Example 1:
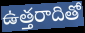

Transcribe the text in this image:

ఉత్తరాదితో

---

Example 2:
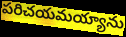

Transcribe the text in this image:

పరిచయమయ్యాను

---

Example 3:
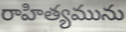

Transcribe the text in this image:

రాహిత్యమును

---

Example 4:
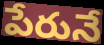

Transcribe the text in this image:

పేరునే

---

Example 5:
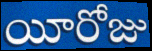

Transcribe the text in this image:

యీరోజు